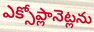
ఎక్సోప్లానెట్లను